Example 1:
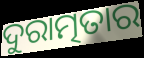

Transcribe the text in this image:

ଦୁରାତ୍ମତାର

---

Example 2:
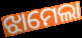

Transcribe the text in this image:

ଝାମେଲା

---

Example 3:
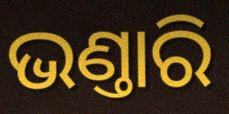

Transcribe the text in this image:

ଭଣ୍ତାରି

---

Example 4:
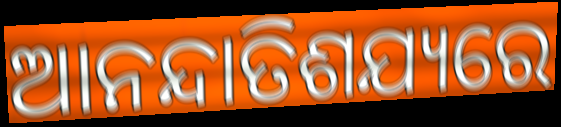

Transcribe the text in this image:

ଆନନ୍ଦାତିଶଯ୍ୟରେ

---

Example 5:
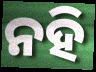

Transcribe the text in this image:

ନହି